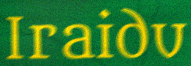
Iraidu